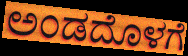
ಅಂಡದೊಳಗೆ